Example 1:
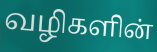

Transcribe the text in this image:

வழிகளின்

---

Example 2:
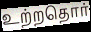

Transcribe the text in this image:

உற்றதொர்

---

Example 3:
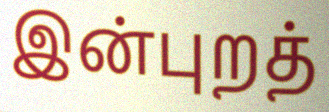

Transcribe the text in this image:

இன்புறத்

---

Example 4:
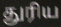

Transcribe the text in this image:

துரிய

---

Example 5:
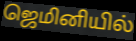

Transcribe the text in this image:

ஜெமினியில்